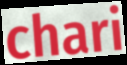
chari